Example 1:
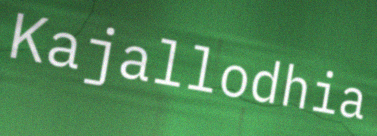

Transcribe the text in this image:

Kajallodhia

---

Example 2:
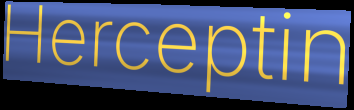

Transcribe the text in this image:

Herceptin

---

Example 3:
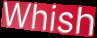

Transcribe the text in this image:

Whish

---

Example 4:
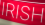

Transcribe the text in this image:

IRISH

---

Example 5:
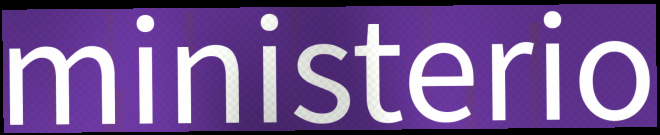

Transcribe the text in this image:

ministerio